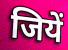
जियें